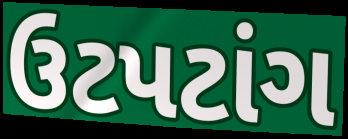
ઉટપટાંગ